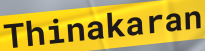
Thinakaran